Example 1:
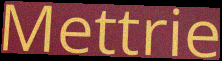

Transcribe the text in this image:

Mettrie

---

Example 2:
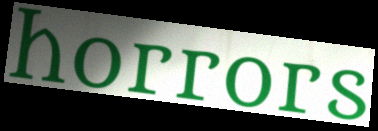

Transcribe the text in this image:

horrors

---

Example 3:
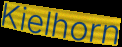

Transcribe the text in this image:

Kielhorn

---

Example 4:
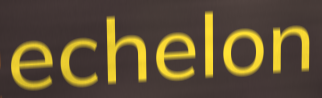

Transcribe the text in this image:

echelon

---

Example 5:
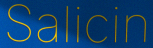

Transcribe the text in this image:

Salicin